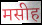
मसीह